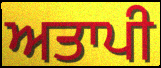
ਅਤਾਪੀ